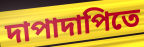
দাপাদাপিতে